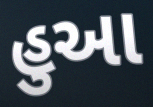
હુઆ